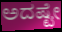
ಅದಷ್ಟೇ